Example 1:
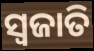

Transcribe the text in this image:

ସ୍ୱଜାତି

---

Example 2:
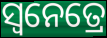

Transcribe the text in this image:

ସ୍ୱନେତ୍ରେ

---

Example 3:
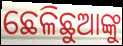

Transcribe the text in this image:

ଛେଳିଛୁଆଙ୍କୁ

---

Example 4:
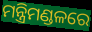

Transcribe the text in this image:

ମନ୍ତ୍ରିମଣ୍ଡଳରେ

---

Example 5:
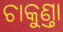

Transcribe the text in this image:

ଚାକୁଣ୍ତା